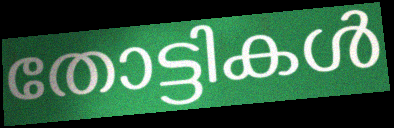
തോട്ടികൾ